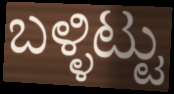
ಬಳ್ಳಿಟ್ಟು